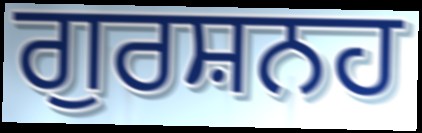
ਗੁਰਸ਼ਨਹ